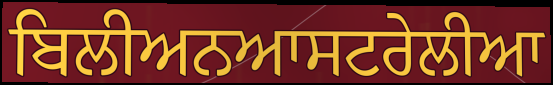
ਬਿਲੀਅਨਆਸਟਰੇਲੀਆ